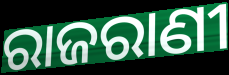
ରାଜରାଣୀ